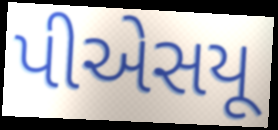
પીએસયૂ